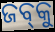
ଜବ୍‍କୁ